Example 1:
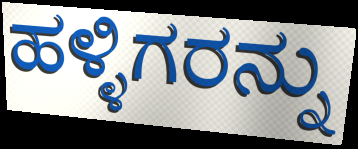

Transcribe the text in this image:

ಹಳ್ಳಿಗರನ್ನು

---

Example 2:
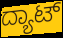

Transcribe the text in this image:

ದ್ಯಾಟ್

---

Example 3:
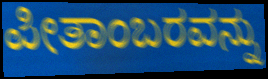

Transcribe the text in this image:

ಪೀತಾಂಬರವನ್ನು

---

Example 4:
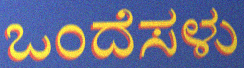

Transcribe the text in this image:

ಒಂದೆಸಳು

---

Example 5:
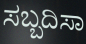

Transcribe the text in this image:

ಸಬ್ಬದಿಸಾ